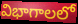
విభాగాలలో